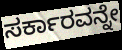
ಸರ್ಕಾರವನ್ನೇ